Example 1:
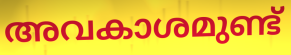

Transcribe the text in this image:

അവകാശമുണ്ട്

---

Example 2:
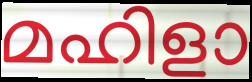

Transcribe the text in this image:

മഹിളാ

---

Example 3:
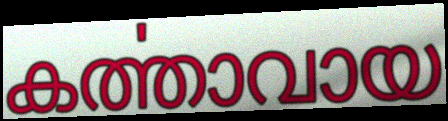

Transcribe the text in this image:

കൎത്താവായ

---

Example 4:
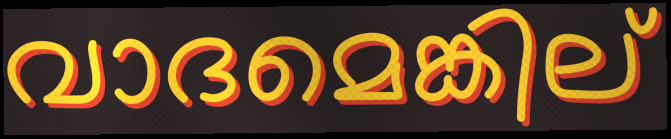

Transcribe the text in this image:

വാദമെങ്കില്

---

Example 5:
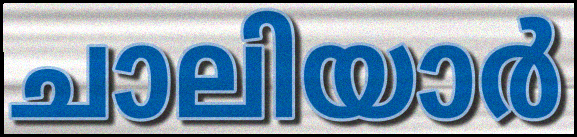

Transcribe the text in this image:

ചാലിയാർ